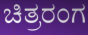
ಚಿತ್ರರಂಗ